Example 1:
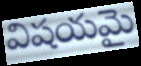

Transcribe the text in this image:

విషయమై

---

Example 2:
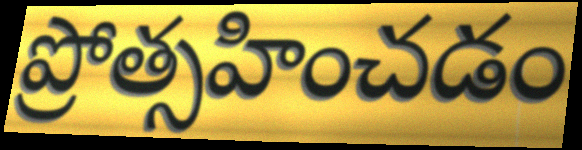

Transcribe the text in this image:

ప్రోత్సహించడం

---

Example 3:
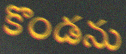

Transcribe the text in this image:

కొండను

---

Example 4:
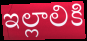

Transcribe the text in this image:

ఇల్లాలికి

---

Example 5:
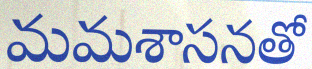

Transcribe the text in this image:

మమశాసనతో